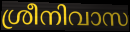
ശ്രീനിവാസ